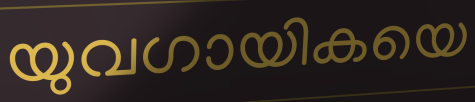
യുവഗായികയെ